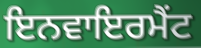
ਇਨਵਾਇਰਮੈਂਟ